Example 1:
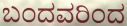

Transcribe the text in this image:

ಬಂದವರಿಂದ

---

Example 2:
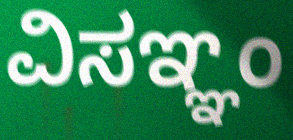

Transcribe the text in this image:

ವಿಸಞ್ಞಂ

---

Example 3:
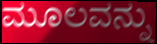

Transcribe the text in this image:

ಮೂಲವನ್ನು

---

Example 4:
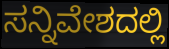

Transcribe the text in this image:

ಸನ್ನಿವೇಶದಲ್ಲಿ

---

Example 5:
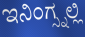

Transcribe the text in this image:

ಇನಿಂಗ್ಸ್ನಲ್ಲಿ